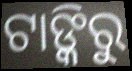
ଟାଙ୍କିରୁ